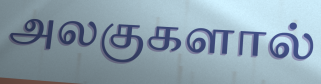
அலகுகளால்